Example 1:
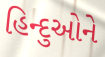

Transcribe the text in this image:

હિન્દુઓને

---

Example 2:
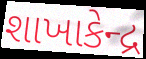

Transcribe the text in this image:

શાખાકેન્દ્ર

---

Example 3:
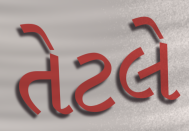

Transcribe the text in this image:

તેટલે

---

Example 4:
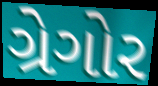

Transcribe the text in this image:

ગ્રેગોર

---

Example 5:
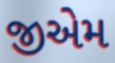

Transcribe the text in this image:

જીએમ